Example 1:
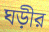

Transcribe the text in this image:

ঘড়ীর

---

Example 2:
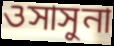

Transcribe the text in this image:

ওসাসুনা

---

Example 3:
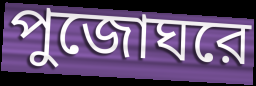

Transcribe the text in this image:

পুজোঘরে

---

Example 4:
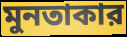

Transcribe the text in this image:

মুনতাকার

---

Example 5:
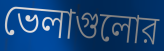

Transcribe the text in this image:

ভেলাগুলোর